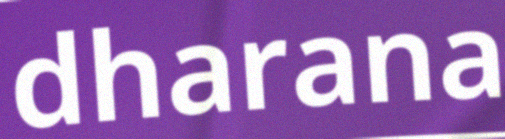
dharana